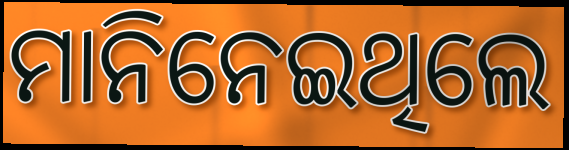
ମାନିନେଇଥିଲେ